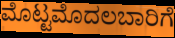
ಮೊಟ್ಟಮೊದಲಬಾರಿಗೆ